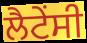
ਲੈਟੇਂਸੀ